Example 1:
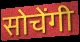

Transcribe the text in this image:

सोचेंगी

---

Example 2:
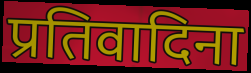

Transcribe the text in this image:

प्रतिवादिना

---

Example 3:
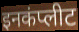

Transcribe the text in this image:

इनकंप्लीट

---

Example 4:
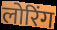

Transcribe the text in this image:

लोरिंग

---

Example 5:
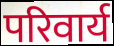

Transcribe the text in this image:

परिवार्य